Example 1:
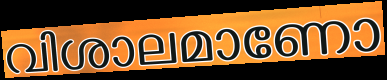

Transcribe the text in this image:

വിശാലമാണോ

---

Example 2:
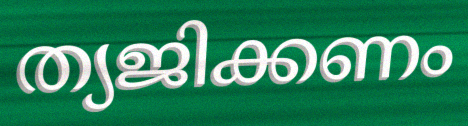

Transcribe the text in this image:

ത്യജിക്കണം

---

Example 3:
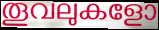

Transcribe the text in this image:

തൂവലുകളോ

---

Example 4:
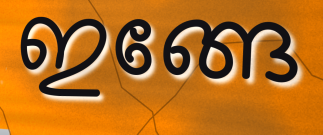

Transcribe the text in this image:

ഇങ്ങേ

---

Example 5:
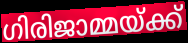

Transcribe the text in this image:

ഗിരിജാമ്മയ്ക്ക്